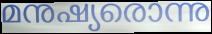
മനുഷ്യരൊന്നു